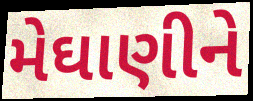
મેઘાણીને